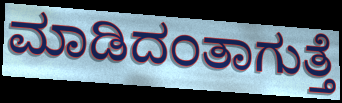
ಮಾಡಿದಂತಾಗುತ್ತೆ